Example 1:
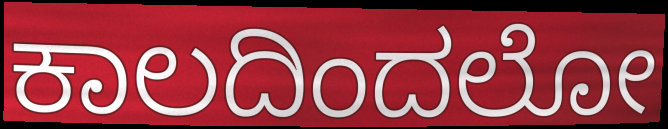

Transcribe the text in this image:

ಕಾಲದಿಂದಲೋ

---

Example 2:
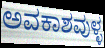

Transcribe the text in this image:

ಅವಕಾಶವುಳ್ಳ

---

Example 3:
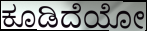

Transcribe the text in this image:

ಕೂಡಿದೆಯೋ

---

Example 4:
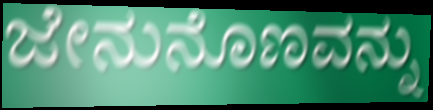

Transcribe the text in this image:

ಜೇನುನೊಣವನ್ನು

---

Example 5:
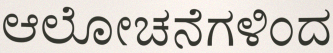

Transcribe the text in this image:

ಆಲೋಚನೆಗಳಿಂದ